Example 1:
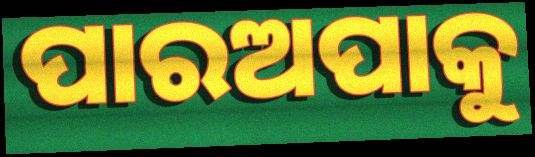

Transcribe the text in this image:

ପାରଅପାକୁ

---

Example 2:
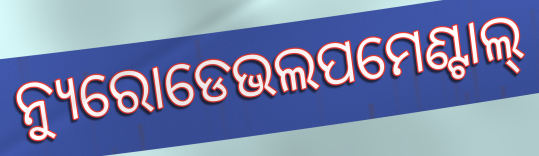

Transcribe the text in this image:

ନ୍ୟୁରୋଡେଭଲପମେଣ୍ଟାଲ୍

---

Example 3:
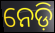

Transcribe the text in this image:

ନେଡ଼ି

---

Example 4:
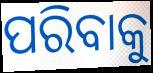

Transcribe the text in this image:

ପରିବାକୁ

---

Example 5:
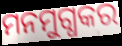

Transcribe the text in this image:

ମନମୁଗ୍ଧକର